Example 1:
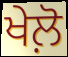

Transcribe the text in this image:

ਖੇਲ਼ੋ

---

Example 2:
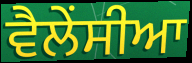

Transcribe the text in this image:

ਵੈਲੇਂਸੀਆ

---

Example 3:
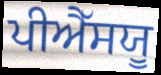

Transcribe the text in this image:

ਪੀਐੱਸਯੂ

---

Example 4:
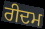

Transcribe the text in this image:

ਰੀਦਮ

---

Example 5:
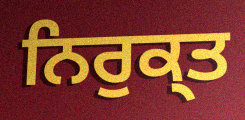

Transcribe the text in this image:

ਨਿਰੁਕ੍ਤ